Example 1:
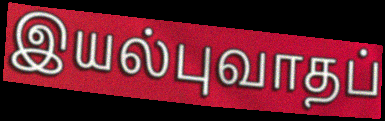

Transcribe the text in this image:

இயல்புவாதப்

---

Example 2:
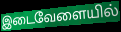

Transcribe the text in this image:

இடைவேளையில்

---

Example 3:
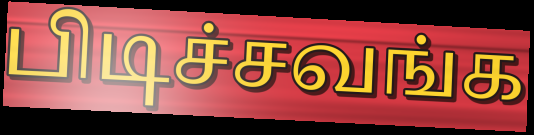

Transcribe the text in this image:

பிடிச்சவங்க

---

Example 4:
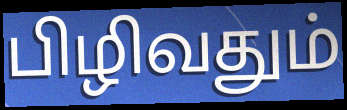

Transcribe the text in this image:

பிழிவதும்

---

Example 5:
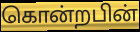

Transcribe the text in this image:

கொன்றபின்